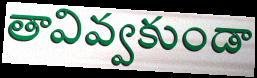
తావివ్వకుండా